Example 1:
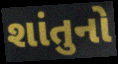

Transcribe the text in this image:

શાંતુનો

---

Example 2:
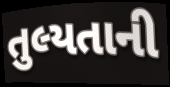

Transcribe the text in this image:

તુલ્યતાની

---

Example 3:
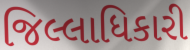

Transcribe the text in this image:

જિલ્લાધિકારી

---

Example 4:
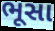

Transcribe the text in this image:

ભૂસા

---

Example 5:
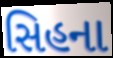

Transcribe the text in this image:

સિહના